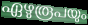
ഏഴുരൂപയും